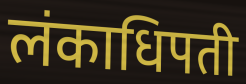
लंकाधिपती